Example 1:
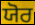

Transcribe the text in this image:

ਯੋਰ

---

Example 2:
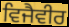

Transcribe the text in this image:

ਵਿਜੈਵੀਰ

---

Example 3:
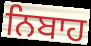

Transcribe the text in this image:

ਨਿਬਾਹ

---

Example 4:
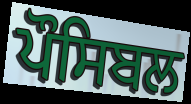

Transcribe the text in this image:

ਪੌਸਿਬਲ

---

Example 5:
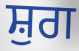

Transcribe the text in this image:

ਸ਼ੁਗ